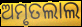
ଅମୃତଲାଲ